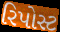
રિપોસ્ટ